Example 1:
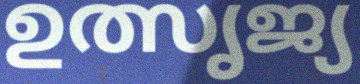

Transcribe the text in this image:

ഉത്സൃജ്യ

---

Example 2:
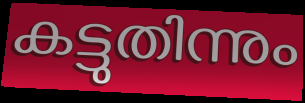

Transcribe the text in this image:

കട്ടുതിന്നും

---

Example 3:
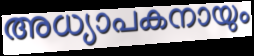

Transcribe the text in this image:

അധ്യാപകനായും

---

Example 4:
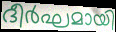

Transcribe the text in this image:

ദീർഘമായി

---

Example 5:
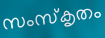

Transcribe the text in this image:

സംസ്കൃതം